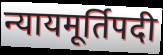
न्यायमूर्तिपदी